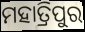
ମହାତ୍ରିପୁର